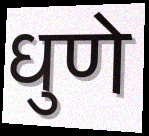
धुणे